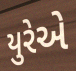
યુરેએ